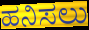
ಹನಿಸಲು